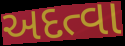
અદત્વા